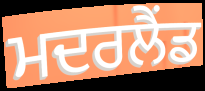
ਮਦਰਲੈਂਡ